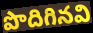
పొదిగినవి